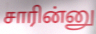
சாரின்னு